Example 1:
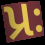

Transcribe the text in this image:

પ્રઃ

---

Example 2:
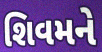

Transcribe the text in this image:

શિવમને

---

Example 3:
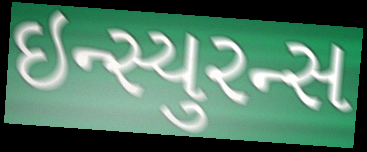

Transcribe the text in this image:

ઇન્સ્યુરન્સ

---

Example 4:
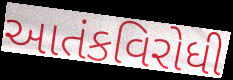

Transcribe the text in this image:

આતંકવિરોધી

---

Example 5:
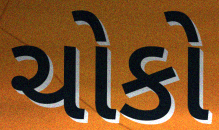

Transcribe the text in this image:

ચોકો